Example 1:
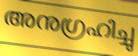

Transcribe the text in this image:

അനുഗ്രഹിച്ചു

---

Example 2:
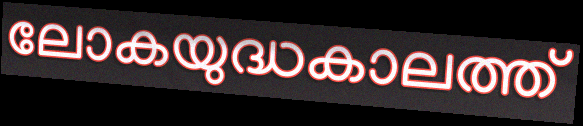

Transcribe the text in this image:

ലോകയുദ്ധകാലത്ത്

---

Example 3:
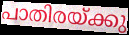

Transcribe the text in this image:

പാതിരയ്ക്കു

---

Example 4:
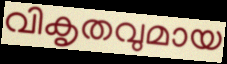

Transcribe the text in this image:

വികൃതവുമായ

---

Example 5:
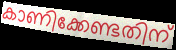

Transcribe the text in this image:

കാണിക്കേണ്ടതിന്